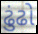
ઢુંઢો